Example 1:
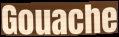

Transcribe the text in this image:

Gouache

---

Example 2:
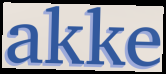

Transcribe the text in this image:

akke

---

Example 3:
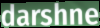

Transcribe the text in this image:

darshne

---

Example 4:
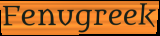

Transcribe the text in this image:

Fenugreek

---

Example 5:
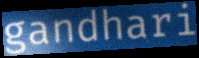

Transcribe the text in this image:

gandhari